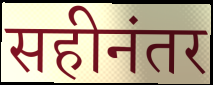
सहीनंतर